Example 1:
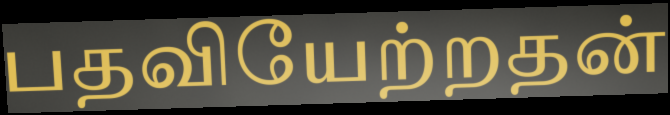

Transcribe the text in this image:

பதவியேற்றதன்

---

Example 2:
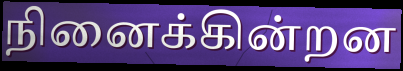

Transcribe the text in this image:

நினைக்கின்றன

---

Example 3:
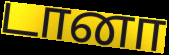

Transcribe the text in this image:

டானா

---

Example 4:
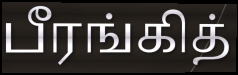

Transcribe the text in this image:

பீரங்கித்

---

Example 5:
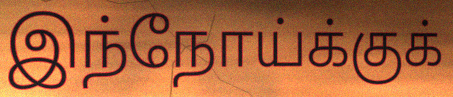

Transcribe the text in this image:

இந்நோய்க்குக்